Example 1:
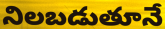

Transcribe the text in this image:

నిలబడుతూనే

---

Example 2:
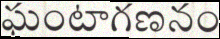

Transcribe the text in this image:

ఘంటాగణనం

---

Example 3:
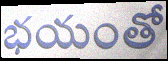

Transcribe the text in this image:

భయంతో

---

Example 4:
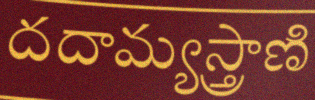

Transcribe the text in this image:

దదామ్యస్త్రాణి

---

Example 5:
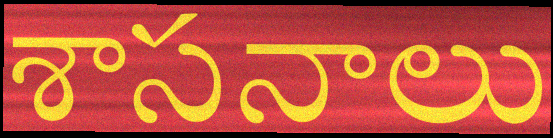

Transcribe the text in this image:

శాసనాలు